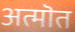
अत्मॊत